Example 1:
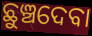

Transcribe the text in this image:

ଛୁଞ୍ଚଦେବା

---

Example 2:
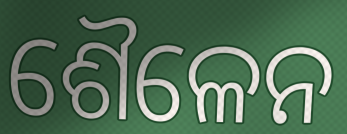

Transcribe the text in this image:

ଶୈଳେନ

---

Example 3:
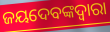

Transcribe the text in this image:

ଜୟଦେବଙ୍କଦ୍ୱାରା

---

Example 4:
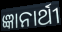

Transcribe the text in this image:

ଜ୍ଞାନାର୍ଥୀ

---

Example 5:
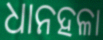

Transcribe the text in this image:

ଧାନହଳା